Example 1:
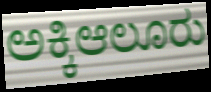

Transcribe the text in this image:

ಅಕ್ಕಿಆಲೂರು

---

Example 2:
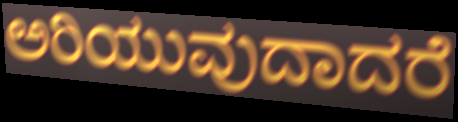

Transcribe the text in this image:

ಅರಿಯುವುದಾದರೆ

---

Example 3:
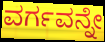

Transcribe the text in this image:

ವರ್ಗವನ್ನೇ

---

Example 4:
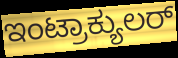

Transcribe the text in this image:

ಇಂಟ್ರಾಕ್ಯುಲರ್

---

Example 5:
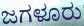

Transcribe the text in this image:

ಜಗಳೂರು